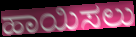
ಹಾಯಿಸಲು